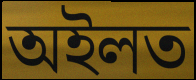
অইলত